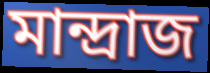
মান্দ্রাজ